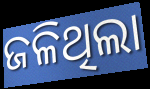
ଜଳିଥିଲା